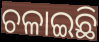
ଚଳାଇଛି